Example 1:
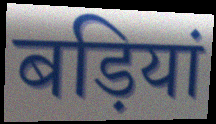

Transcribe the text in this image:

बड़ियां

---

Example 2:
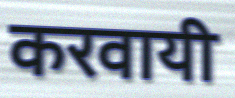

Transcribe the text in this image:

करवायी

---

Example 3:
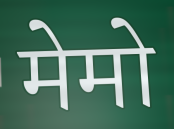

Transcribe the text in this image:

मेमो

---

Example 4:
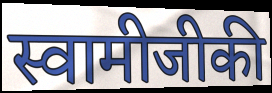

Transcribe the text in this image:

स्वामीजीकी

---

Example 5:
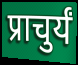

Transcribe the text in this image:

प्राचुर्यं